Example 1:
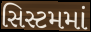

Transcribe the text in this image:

સિસ્ટમમાં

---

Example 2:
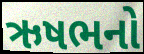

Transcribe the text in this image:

ઋષભનો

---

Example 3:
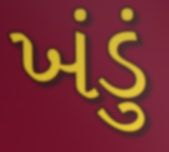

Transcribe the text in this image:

ખંડું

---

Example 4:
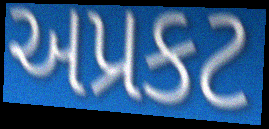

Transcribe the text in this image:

અપ્રકટ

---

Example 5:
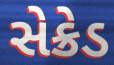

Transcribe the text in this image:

સેક્રેડ